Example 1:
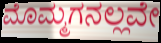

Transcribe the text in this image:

ಮೊಮ್ಮಗನಲ್ಲವೇ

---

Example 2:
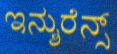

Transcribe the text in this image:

ಇನ್ಶುರೆನ್ಸ್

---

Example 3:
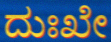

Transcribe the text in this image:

ದುಃಖೇ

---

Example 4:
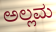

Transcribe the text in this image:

ಅಲ್ಲಮ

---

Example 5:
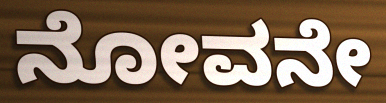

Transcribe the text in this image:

ನೋವನೇ